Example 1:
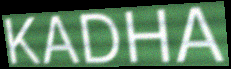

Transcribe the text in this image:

KADHA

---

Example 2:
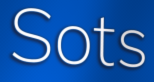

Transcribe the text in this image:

Sots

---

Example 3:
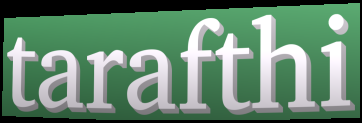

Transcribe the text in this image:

tarafthi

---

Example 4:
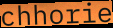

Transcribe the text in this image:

chhorie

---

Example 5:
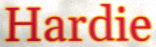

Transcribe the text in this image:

Hardie